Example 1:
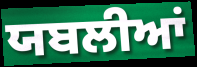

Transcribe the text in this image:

ਯਬਲੀਆਂ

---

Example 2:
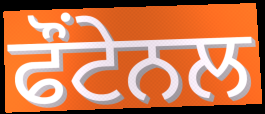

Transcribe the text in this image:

ਫੌਂਟੇਨਲ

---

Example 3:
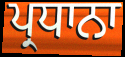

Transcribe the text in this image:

ਪ੍ਰਧਾਨਾ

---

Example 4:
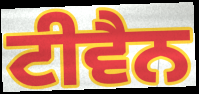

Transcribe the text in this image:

ਟੀਵੈਨ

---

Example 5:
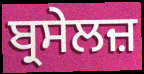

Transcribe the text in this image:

ਬ੍ਰਸੇਲਜ਼